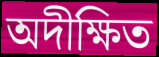
অদীক্ষিত